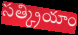
సత్క్రియాం